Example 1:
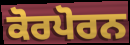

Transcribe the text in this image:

ਕੋਰਪੋਰਨ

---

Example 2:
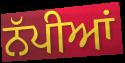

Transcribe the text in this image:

ਨੱਪੀਆਂ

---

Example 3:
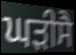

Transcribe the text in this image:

ਘੜੀਸੈ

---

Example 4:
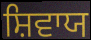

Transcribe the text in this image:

ਸ਼ਿਵਾਯ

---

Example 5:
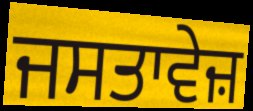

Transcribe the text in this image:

ਜਸਤਾਵੇਜ਼